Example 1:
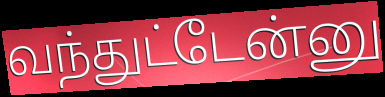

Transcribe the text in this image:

வந்துட்டேன்னு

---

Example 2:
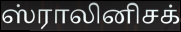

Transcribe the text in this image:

ஸ்ராலினிசக்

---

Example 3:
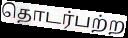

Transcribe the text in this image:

தொடர்பற்ற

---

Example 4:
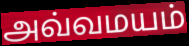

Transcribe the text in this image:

அவ்வமயம்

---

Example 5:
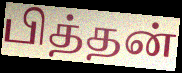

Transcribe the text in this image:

பித்தன்